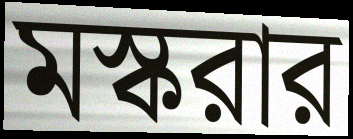
মস্করার